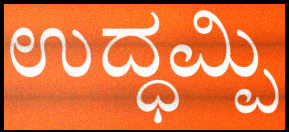
ಉದ್ಧಮ್ಪಿ